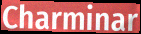
Charminar